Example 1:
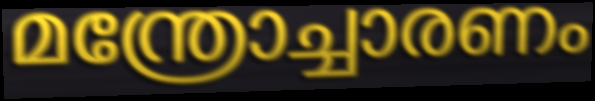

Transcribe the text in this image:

മന്ത്രോച്ചാരണം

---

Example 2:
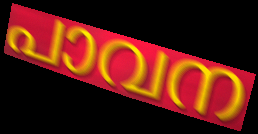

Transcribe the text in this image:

പാവന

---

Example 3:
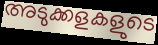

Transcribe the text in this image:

അടുക്കളകളുടെ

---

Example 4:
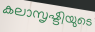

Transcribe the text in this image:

കലാസൃഷ്ടിയുടെ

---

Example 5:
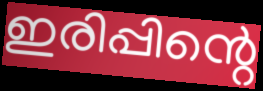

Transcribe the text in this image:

ഇരിപ്പിന്റെ